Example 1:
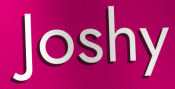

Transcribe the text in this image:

Joshy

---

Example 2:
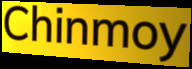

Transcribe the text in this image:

Chinmoy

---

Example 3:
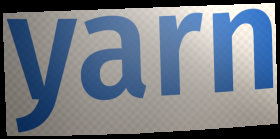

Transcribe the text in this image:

yarn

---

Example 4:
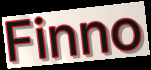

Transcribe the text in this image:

Finno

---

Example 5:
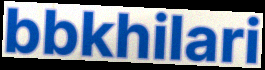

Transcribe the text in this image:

bbkhilari